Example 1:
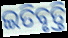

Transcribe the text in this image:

ଇତିବୃତ୍ତି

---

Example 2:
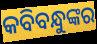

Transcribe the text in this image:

କବିବନ୍ଧୁଙ୍କର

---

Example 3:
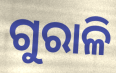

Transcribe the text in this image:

ଗୁରାଳି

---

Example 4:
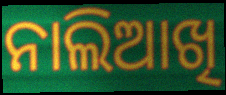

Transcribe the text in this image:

ନାଲିଆଖି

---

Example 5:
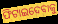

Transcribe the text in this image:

ଫିଟାଇଦେବାକୁ